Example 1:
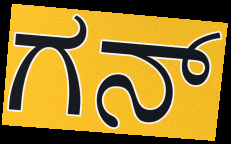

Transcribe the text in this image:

ಗನ್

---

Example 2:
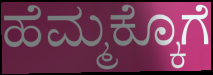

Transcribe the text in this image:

ಹೆಮ್ಮಕ್ಕೊಗೆ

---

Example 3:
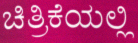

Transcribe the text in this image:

ಚಿತ್ರಿಕೆಯಲ್ಲಿ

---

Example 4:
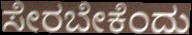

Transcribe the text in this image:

ಸೇರಬೇಕೆಂದು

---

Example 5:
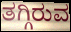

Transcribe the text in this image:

ತಗ್ಗಿರುವ